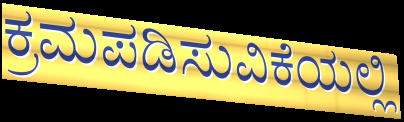
ಕ್ರಮಪಡಿಸುವಿಕೆಯಲ್ಲಿ